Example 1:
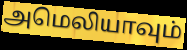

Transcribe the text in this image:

அமெலியாவும்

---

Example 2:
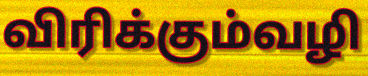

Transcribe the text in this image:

விரிக்கும்வழி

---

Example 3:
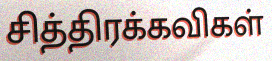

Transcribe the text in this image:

சித்திரக்கவிகள்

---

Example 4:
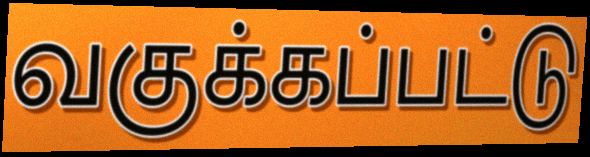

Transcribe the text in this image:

வகுக்கப்பட்டு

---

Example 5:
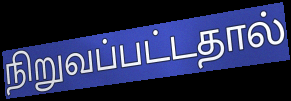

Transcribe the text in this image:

நிறுவப்பட்டதால்